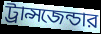
ট্রান্সজেন্ডার